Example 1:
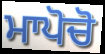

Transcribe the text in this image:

ਮਾਪੋਚੋ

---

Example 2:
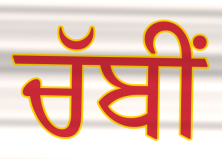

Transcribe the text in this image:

ਚੱਬੀਂ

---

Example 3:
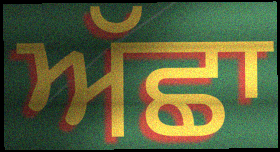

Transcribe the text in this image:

ਅੱਛਾ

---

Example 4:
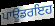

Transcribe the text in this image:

ਪਾਊਡਰਇਹ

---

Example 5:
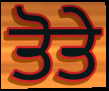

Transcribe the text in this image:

ਤੋਤੇ